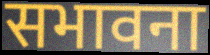
सभावना